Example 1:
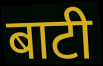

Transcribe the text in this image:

बाटी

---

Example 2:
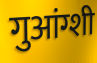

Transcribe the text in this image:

गुआंग्शी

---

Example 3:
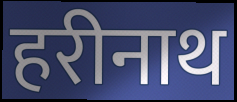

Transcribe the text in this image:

हरीनाथ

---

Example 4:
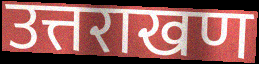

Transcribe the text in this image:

उत्तराखण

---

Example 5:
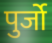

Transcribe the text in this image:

पुर्जो